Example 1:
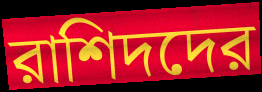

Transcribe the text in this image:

রাশিদদের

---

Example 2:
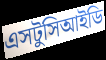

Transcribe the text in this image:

এসটুসিআইডি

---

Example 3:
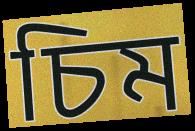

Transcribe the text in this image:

চিম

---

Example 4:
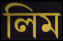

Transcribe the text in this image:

লিম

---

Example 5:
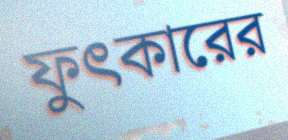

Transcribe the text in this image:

ফুৎকারের